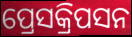
ପ୍ରେସକ୍ରିପସନ